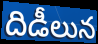
దిడీలున